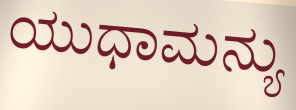
ಯುಧಾಮನ್ಯು